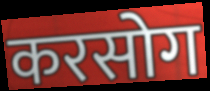
करसोग